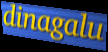
dinagalu